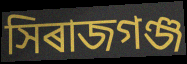
সিৰাজগঞ্জ